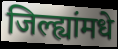
जिल्ह्यांमधे